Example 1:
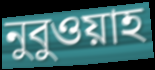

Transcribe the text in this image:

নুবুওয়াহ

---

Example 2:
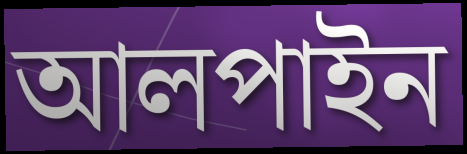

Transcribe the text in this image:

আলপাইন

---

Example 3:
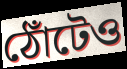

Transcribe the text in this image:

ঠোঁটেও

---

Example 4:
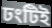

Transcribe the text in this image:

ঢংটিই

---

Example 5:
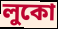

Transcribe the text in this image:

লুকো